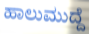
ಹಾಲುಮುದ್ದೆ